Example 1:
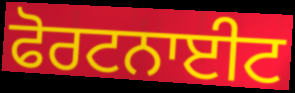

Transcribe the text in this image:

ਫੋਰਟਨਾਈਟ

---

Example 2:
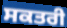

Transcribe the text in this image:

ਸਕਤਰੀ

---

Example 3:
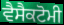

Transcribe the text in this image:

ਵੈਸੈਕਟੋਮੀ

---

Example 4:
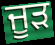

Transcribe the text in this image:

ਜੂੜ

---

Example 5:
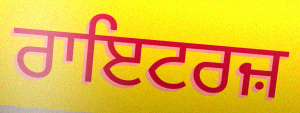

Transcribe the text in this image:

ਰਾਇਟਰਜ਼